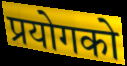
प्रयोगको